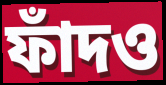
ফাঁদও